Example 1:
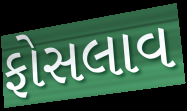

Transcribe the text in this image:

ફોસલાવ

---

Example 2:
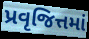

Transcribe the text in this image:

પ્રવૃજિત્તમાં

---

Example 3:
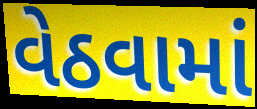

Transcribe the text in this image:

વેઠવામાં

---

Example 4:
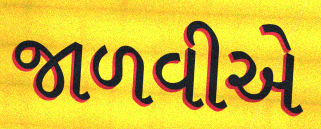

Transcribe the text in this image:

જાળવીએ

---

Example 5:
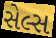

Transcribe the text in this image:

સેલ્સ